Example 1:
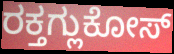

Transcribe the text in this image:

ರಕ್ತಗ್ಲುಕೋಸ್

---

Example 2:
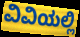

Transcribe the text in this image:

ವಿವಿಯಲ್ಲಿ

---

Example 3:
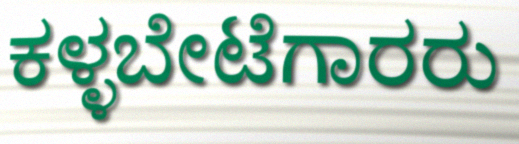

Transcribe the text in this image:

ಕಳ್ಳಬೇಟೆಗಾರರು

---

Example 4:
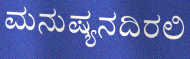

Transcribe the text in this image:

ಮನುಷ್ಯನದಿರಲಿ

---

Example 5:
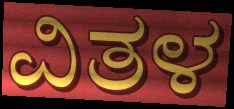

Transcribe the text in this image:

ವಿತಳ